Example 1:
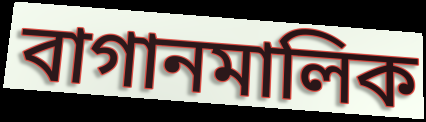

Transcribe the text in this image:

বাগানমালিক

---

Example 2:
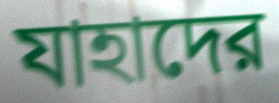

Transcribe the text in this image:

যাহাদের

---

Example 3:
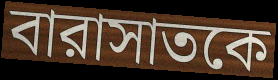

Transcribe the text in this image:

বারাসাতকে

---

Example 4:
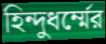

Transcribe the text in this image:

হিন্দুধর্ম্মের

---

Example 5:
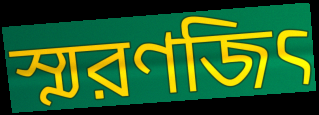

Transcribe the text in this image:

স্মরণজিৎ